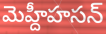
మెహ్దీహసన్